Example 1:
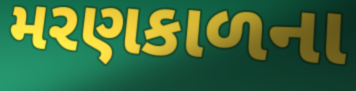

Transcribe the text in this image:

મરણકાળના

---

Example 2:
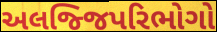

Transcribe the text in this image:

અલજ્જિપરિભોગો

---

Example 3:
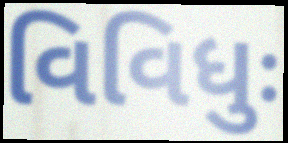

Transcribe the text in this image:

વિવિધુઃ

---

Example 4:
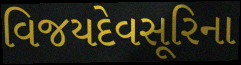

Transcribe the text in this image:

વિજયદેવસૂરિના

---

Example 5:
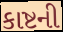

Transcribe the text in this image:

કાષ્ટની